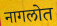
नागलोत